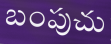
బంపుచు